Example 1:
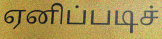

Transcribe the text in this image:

ஏனிப்படிச்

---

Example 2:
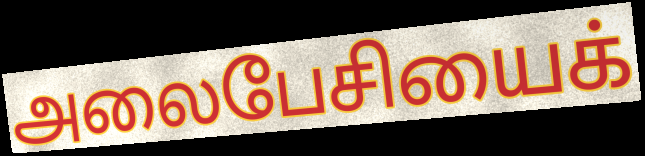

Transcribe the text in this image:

அலைபேசியைக்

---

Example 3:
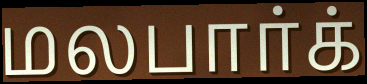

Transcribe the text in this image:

மலபார்க்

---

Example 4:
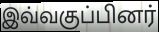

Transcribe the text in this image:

இவ்வகுப்பினர்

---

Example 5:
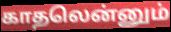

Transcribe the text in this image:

காதலென்னும்